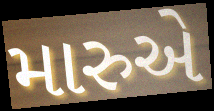
મારુએ